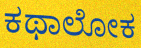
ಕಥಾಲೋಕ